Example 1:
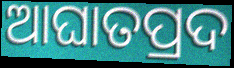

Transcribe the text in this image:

ଆଘାତପ୍ରଦ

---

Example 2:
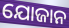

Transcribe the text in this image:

ଯୋଜାନ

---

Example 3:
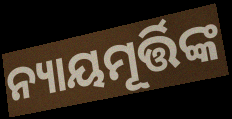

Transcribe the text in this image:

ନ୍ୟାୟମୂର୍ତ୍ତିଙ୍କ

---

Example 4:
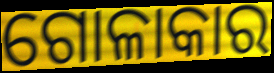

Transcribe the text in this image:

ଗୋଳାକାର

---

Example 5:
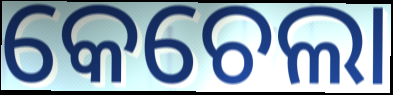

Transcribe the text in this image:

କେଚେଲା